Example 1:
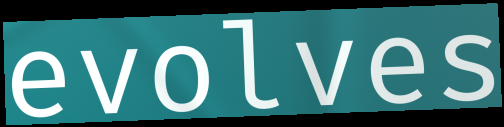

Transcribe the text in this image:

evolves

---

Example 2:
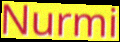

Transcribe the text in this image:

Nurmi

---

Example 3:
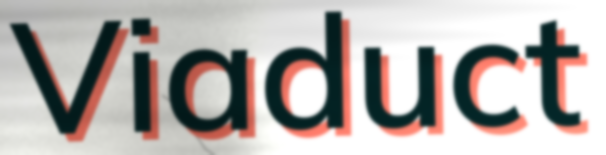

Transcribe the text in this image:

Viaduct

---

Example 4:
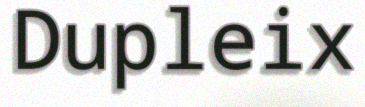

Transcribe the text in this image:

Dupleix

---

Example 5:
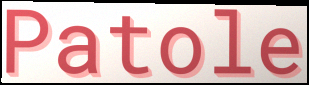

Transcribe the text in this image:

Patole